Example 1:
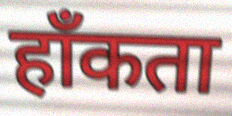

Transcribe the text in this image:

हाँकता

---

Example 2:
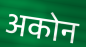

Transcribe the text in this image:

अकोन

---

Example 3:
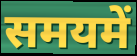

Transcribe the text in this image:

समयमें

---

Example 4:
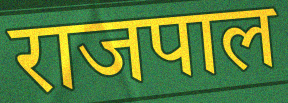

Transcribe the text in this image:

राजपाल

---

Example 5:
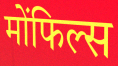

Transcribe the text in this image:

मोंफिल्स